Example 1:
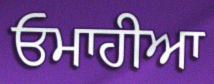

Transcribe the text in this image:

ਓਮਾਹੀਆ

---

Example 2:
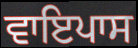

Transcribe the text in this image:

ਵਾਇਪਾਸ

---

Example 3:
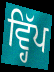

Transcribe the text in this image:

ਵ੍ਹਿੱਪ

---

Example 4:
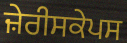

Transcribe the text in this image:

ਜ਼ੇਰੀਸਕੇਪਸ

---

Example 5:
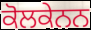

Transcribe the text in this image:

ਕੋਲਕੇਨਨ